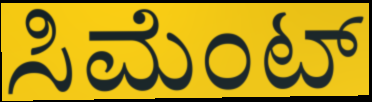
ಸಿಮೆಂಟ್